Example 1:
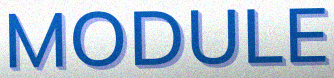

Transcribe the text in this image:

MODULE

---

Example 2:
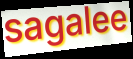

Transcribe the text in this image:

sagalee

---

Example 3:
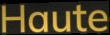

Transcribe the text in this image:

Haute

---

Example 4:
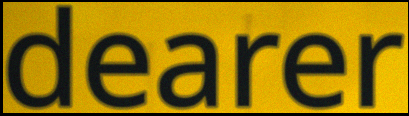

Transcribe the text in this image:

dearer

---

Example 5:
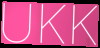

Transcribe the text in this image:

UKK